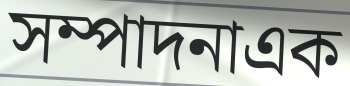
সম্পাদনাএক